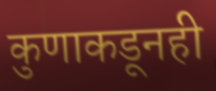
कुणाकडूनही